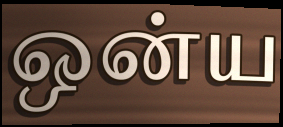
ஒன்ய